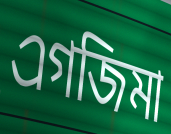
এগজিমা